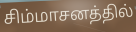
சிம்மாசனத்தில்